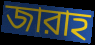
জারাহ